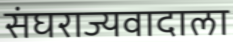
संघराज्यवादाला